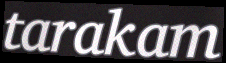
tarakam